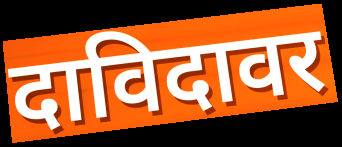
दाविदावर